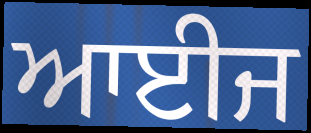
ਆਈਜ